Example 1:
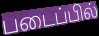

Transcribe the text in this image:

படைப்பில்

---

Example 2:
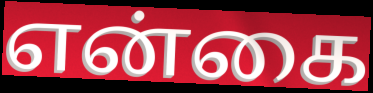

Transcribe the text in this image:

என்கை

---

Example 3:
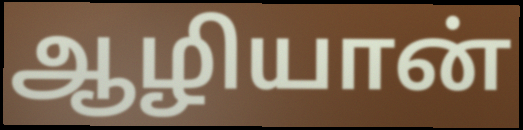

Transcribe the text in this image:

ஆழியான்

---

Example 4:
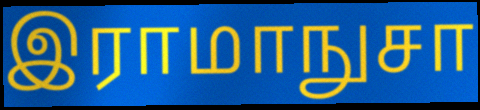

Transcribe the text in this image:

இராமாநுசா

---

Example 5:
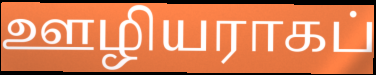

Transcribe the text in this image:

ஊழியராகப்